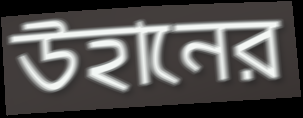
উহানের